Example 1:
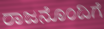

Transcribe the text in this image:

ರಾಜನೊಂದಿಗೆ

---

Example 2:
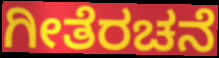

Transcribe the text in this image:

ಗೀತೆರಚನೆ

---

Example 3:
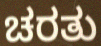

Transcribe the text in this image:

ಚರತು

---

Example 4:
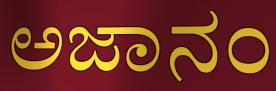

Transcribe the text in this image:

ಅಜಾನಂ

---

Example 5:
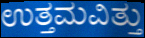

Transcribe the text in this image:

ಉತ್ತಮವಿತ್ತು